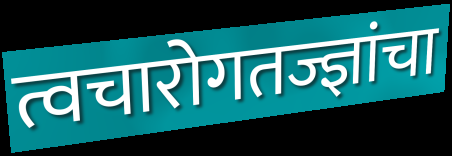
त्वचारोगतज्ज्ञांचा